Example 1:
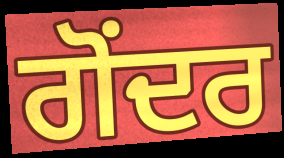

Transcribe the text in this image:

ਗੋਂਦਰ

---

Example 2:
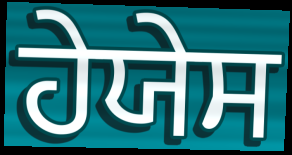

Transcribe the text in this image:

ਹੇਯੇਸ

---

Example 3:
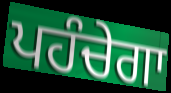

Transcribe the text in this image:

ਪਹੰਚੇਗਾ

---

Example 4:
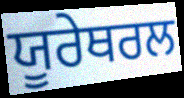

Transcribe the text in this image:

ਯੂਰੇਥਰਲ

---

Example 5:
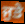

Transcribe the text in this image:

ਜੁਤੇ